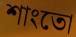
শাংতো